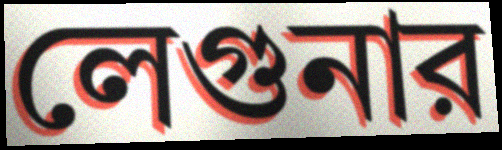
লেগুনার